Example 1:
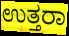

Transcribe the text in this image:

ಉತ್ತರಾ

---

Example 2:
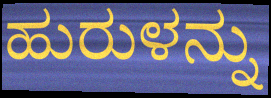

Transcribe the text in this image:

ಹುರುಳನ್ನು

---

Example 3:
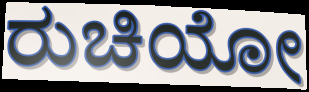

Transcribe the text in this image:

ರುಚಿಯೋ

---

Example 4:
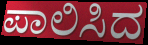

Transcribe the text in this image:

ಪಾಲಿಸಿದ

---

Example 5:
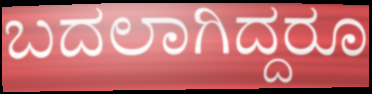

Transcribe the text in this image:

ಬದಲಾಗಿದ್ದರೂ